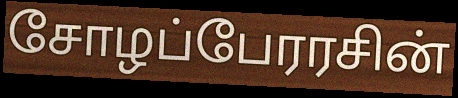
சோழப்பேரரசின்